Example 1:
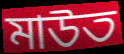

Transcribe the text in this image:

মাউত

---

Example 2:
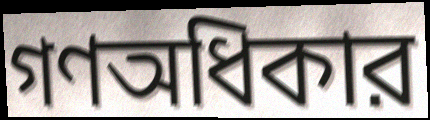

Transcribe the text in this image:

গণঅধিকার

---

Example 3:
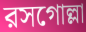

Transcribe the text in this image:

রসগোল্লা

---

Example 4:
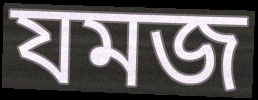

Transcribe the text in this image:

যমজ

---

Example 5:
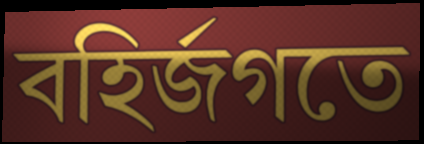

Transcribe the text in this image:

বহির্জগতে